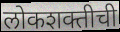
लोकशक्तीची